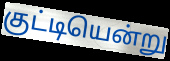
குட்டியென்று